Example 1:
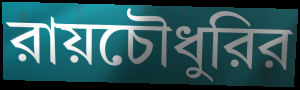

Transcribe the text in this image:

রায়চৌধুরির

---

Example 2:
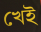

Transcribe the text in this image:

খেই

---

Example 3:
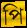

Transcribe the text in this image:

পি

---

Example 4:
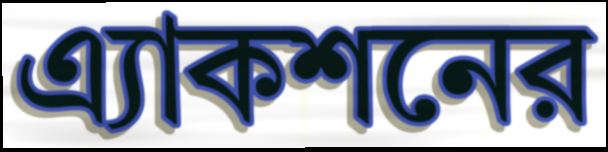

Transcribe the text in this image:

এ্যাকশনের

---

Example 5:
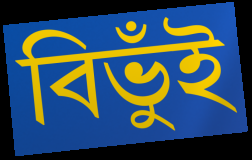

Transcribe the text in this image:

বিভুঁই